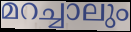
മറച്ചാലും